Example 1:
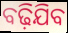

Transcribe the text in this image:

ବଢ଼ିଯିବ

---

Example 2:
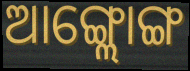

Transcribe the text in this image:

ଆଙ୍ଗ୍ଲୋଙ୍ଗ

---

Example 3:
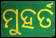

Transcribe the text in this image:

ମୁହର୍ତ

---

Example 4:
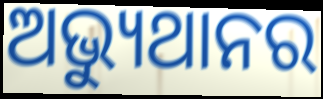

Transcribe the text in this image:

ଅଭ୍ୟୁଥାନର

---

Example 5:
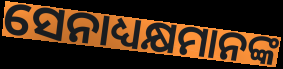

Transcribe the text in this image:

ସେନାଧ୍ୟକ୍ଷମାନଙ୍କ